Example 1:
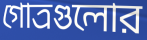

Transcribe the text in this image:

গোত্রগুলোর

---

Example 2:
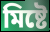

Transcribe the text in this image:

মিষ্টে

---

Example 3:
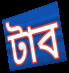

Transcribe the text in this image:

টাব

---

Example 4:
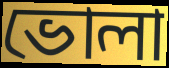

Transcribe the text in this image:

ভোলা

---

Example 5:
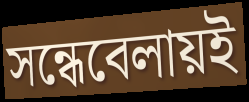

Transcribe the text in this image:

সন্ধেবেলায়ই